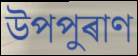
উপপুৰাণ